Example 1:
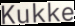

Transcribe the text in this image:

Kukke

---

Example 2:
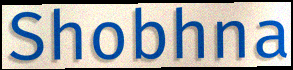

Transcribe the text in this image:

Shobhna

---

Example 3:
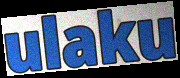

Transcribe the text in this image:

ulaku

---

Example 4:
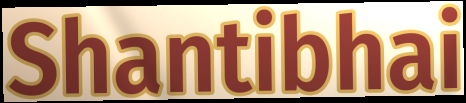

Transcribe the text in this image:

Shantibhai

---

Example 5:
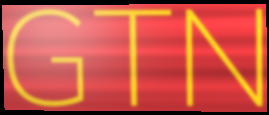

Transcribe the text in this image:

GTN